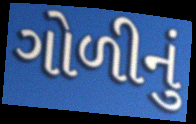
ગોળીનું